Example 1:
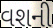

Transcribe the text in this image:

વશની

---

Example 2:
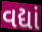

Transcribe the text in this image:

વદ્યાં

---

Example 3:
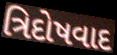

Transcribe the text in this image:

ત્રિદોષવાદ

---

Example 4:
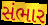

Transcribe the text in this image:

સંભાર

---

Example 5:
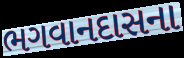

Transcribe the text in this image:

ભગવાનદાસના